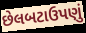
છેલબટાઉપણું